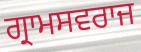
ਗ੍ਰਾਮਸਵਰਾਜ